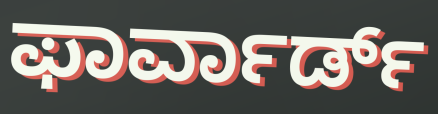
ಫಾರ್ವಾರ್ಡ್